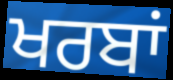
ਖਰਬਾਂ